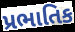
પ્રભાતિક